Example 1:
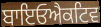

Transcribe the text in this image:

ਬਾਇਓਐਕਟਿਵ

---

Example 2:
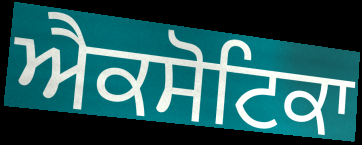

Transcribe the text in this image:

ਐਕਸੋਟਿਕਾ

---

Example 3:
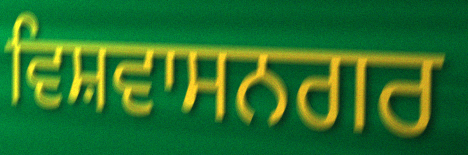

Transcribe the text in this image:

ਵਿਸ਼ਵਾਸਨਗਰ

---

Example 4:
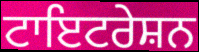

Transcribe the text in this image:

ਟਾਇਟਰੇਸ਼ਨ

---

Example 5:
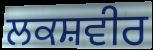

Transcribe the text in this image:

ਲਕਸ਼ਵੀਰ